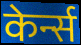
केर्न्स